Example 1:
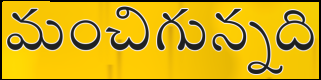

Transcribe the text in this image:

మంచిగున్నది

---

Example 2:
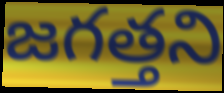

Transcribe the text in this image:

జగత్తని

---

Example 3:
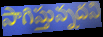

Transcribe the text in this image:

సాగిస్తున్నదని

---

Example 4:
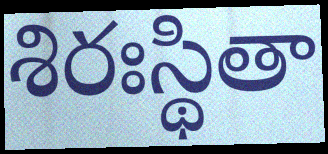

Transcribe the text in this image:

శిరఃస్థితా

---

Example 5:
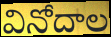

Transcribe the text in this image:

వినోదాల